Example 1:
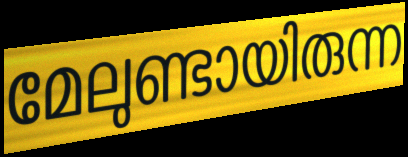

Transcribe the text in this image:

മേലുണ്ടായിരുന്ന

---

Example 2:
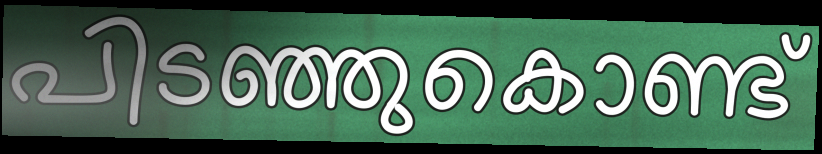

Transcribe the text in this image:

പിടഞ്ഞുകൊണ്ട്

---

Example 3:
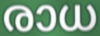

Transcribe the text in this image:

രാധ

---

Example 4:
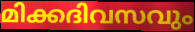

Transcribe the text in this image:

മിക്കദിവസവും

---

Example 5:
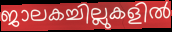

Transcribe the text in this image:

ജാലകച്ചില്ലുകളിൽ